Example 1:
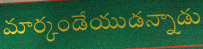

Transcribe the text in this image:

మార్కండేయుడన్నాడు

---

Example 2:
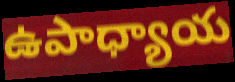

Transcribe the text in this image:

ఉపాధ్యాయ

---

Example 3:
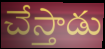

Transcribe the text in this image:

చేస్తాడు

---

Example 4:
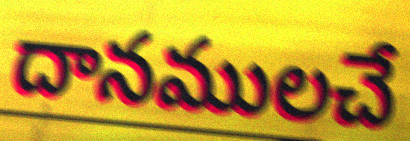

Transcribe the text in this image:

దానములచే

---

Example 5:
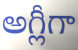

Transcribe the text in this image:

అగ్లీగా